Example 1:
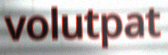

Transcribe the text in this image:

volutpat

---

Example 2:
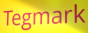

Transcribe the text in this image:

Tegmark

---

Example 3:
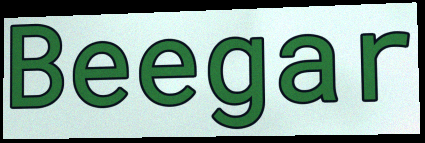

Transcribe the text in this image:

Beegar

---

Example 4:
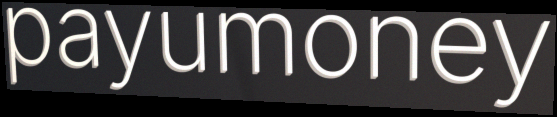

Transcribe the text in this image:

payumoney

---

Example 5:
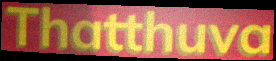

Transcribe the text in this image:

Thatthuva